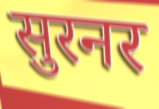
सुरनर